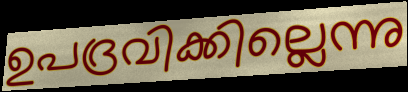
ഉപദ്രവിക്കില്ലെന്നു